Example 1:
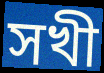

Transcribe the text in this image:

সখী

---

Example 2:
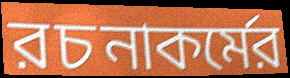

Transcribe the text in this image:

রচনাকর্মের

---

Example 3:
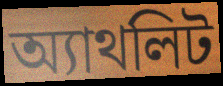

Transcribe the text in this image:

অ্যাথলিট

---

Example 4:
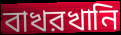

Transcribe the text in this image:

বাখরখানি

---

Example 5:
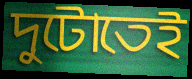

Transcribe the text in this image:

দুটোতেই